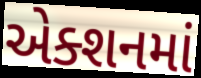
એક્શનમાં